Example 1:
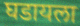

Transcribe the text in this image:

घडायला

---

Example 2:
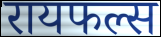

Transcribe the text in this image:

रायफल्स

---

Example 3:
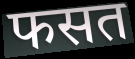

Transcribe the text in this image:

फसत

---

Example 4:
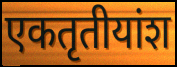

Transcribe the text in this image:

एकतृतीयांश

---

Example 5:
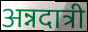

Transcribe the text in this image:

अन्नदात्री